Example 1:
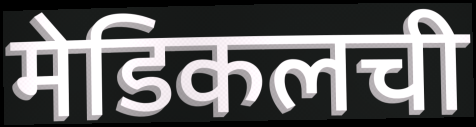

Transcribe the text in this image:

मेडिकलची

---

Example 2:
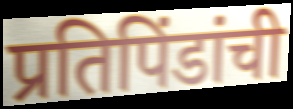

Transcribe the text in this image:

प्रतिपिंडांची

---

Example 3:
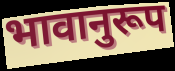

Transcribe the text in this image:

भावानुरूप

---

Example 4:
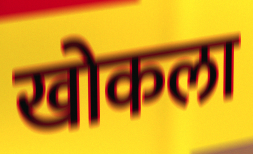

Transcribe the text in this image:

खोकला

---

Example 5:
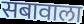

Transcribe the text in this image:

सबावाला